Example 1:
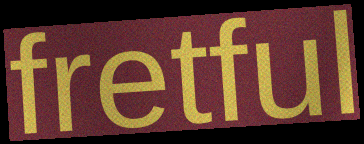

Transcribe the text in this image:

fretful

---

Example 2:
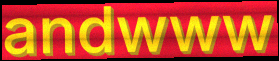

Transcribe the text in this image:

andwww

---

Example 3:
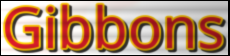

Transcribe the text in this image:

Gibbons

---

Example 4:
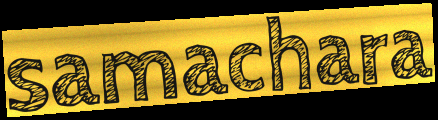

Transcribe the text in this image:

samachara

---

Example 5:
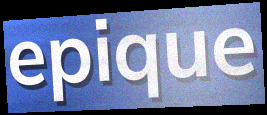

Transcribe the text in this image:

epique